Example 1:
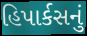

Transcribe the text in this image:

હિપાર્કસનું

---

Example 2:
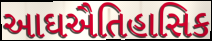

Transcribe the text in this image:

આઘઐતિહાસિક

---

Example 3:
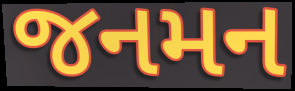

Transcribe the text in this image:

જનમન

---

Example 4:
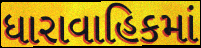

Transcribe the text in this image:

ધારાવાહિકમાં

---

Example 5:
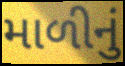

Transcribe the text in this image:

માળીનું